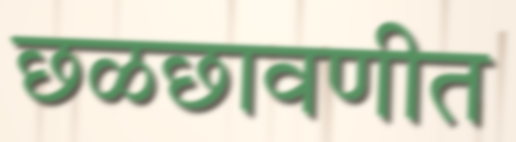
छळछावणीत